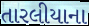
તારલીયાના